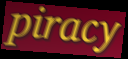
piracy